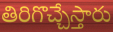
తిరిగొచ్చేస్తారు